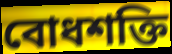
বোধশক্তি